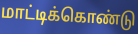
மாட்டிக்கொண்டு